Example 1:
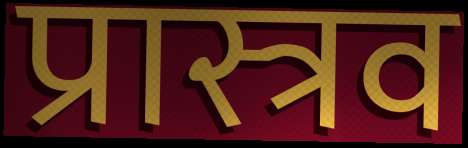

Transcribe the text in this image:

प्रास्त्रव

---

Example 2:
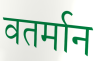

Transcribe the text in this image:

वतर्मान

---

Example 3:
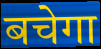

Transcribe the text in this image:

बचेगा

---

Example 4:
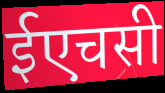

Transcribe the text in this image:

ईएचसी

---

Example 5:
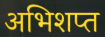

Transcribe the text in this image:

अभिशप्त